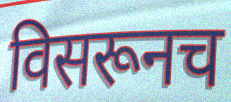
विसरूनच